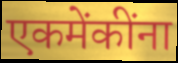
एकमेंकींना